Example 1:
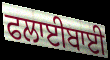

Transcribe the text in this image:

ਫਲਾਈਬਾਈ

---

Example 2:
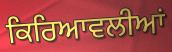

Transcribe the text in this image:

ਕਿਰਿਆਵਲੀਆਂ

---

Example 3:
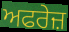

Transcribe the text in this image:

ਅਫਰੇਜ਼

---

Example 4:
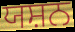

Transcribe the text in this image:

ਯਸ਼ਨ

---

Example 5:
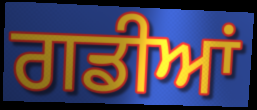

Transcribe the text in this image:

ਗਡੀਆਂ